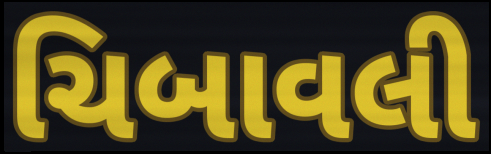
ચિબાવલી